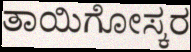
ತಾಯಿಗೋಸ್ಕರ